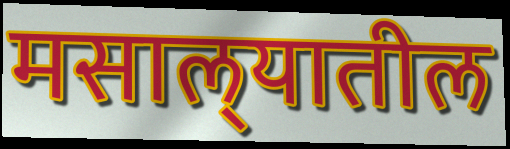
मसाल्यातील